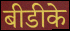
बीडीके